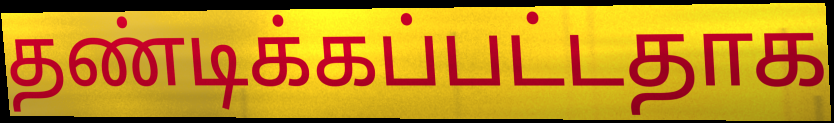
தண்டிக்கப்பட்டதாக